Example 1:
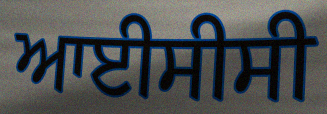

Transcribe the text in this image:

ਆਈਸੀਸੀ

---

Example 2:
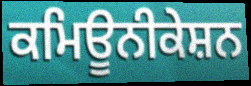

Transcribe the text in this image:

ਕਮਿਊਨੀਕੇਸ਼ਨ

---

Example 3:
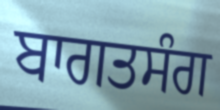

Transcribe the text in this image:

ਬਾਗਤਸੰਗ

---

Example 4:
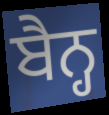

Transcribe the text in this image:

ਬੈਨ੍ਹ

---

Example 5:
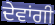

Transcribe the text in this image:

ਦੇਵਾਂਗੀ